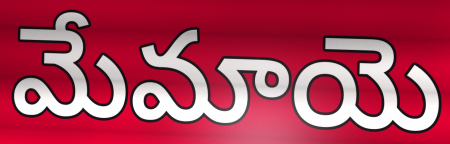
మేమాయె